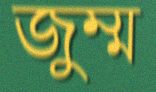
জুম্ম